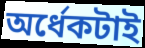
অর্ধেকটাই